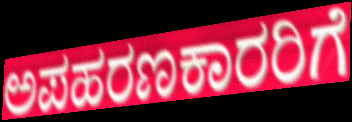
ಅಪಹರಣಕಾರರಿಗೆ